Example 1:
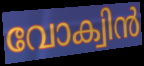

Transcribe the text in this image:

വോക്വിൻ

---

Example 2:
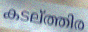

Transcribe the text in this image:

കടല്ത്തിര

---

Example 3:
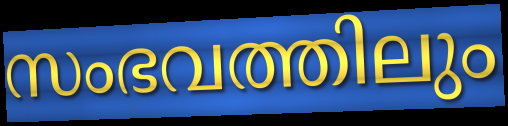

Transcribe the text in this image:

സംഭവത്തിലും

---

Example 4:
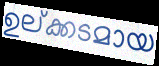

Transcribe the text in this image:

ഉല്ക്കടമായ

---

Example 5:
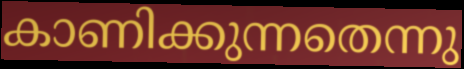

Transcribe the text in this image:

കാണിക്കുന്നതെന്നു